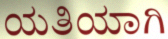
ಯತಿಯಾಗಿ